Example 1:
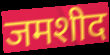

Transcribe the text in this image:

जमशीद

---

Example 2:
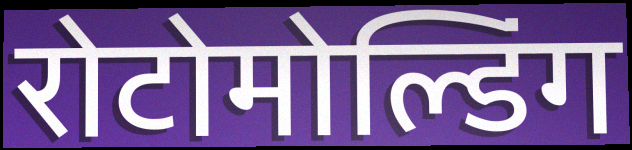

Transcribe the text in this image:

रोटोमोल्डिंग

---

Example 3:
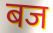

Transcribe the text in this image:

बज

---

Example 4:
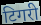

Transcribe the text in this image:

टिगरी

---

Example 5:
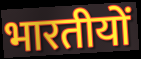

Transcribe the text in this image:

भारतीयों